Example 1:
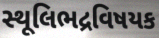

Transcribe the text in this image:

સ્થૂલિભદ્રવિષયક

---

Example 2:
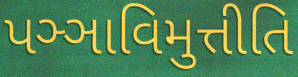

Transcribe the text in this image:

પઞ્ઞાવિમુત્તીતિ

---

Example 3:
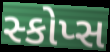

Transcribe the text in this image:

સ્કોપ્સ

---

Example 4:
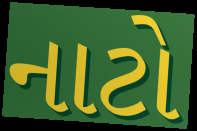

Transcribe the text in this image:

નાટો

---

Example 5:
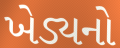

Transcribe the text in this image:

ખેડ્યનો